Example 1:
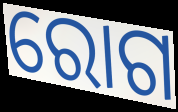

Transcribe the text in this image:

ରୋଗ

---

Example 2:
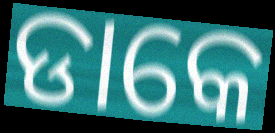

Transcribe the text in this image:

ଡାକେ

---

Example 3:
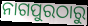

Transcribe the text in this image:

ନାଗପୁରଠାରୁ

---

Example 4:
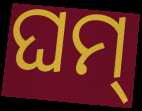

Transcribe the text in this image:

ଘମ୍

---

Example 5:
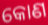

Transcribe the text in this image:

କୋଣ